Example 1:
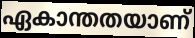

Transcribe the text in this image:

ഏകാന്തതയാണ്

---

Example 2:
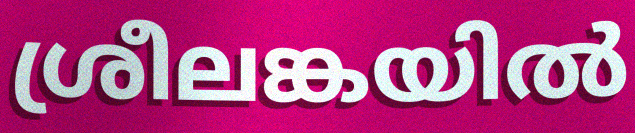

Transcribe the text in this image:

ശ്രീലങ്കയിൽ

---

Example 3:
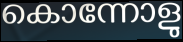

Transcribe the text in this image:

കൊന്നോളു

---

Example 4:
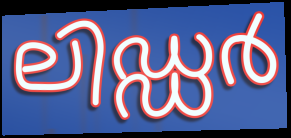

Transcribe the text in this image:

ലിഡ്ഡർ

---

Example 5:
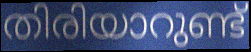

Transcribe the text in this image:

തിരിയാറുണ്ട്